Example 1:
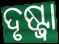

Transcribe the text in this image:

ଦୃଷ୍ଟ୍ବା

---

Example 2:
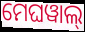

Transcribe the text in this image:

ମେଘୱାଲ୍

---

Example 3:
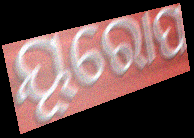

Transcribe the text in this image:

ୟୂରୋପ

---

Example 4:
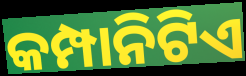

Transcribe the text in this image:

କମ୍ପାନିଟିଏ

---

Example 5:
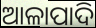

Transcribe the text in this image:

ଆଳାପାଦି